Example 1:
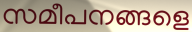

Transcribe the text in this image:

സമീപനങ്ങളെ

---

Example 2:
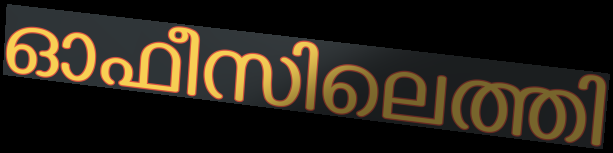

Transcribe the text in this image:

ഓഫീസിലെത്തി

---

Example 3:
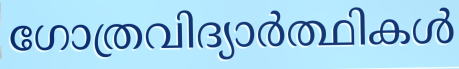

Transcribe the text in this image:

ഗോത്രവിദ്യാർത്ഥികൾ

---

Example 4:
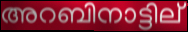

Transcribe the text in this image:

അറബിനാട്ടില്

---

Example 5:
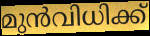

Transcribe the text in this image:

മുൻവിധിക്ക്